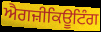
ਐਗਜ਼ੀਕਿਊਟਿੰਗ